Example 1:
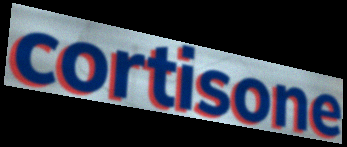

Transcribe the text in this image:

cortisone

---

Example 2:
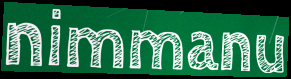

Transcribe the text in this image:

nimmanu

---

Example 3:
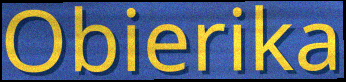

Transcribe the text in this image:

Obierika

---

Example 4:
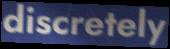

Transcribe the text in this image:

discretely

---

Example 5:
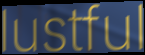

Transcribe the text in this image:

lustful